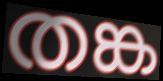
തങ്ക